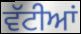
ਵੱਟੀਆਂ